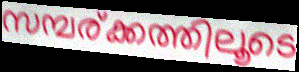
സമ്പര്ക്കത്തിലൂടെ